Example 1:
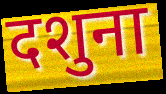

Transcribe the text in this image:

दशुना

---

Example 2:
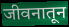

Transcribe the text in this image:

जीवनातून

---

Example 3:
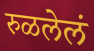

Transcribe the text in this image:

रुळलेलं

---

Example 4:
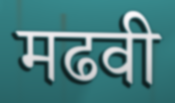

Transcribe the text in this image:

मढवी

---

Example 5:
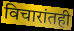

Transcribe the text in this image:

विचारांतही